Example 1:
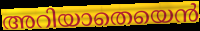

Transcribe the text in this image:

അറിയാതെയെൻ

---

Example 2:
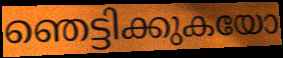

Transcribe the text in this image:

ഞെട്ടിക്കുകയോ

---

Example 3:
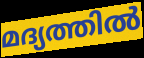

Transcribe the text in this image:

മദ്യത്തിൽ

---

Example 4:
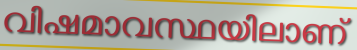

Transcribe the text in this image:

വിഷമാവസ്ഥയിലാണ്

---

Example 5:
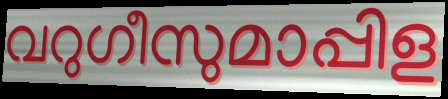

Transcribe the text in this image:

വറുഗീസുമാപ്പിള